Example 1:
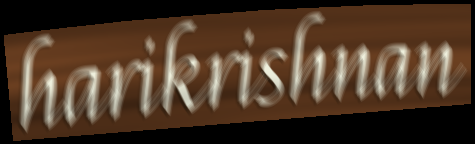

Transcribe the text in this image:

harikrishnan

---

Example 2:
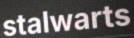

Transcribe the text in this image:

stalwarts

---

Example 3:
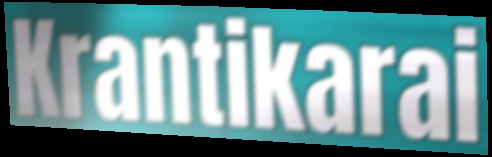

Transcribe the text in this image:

Krantikarai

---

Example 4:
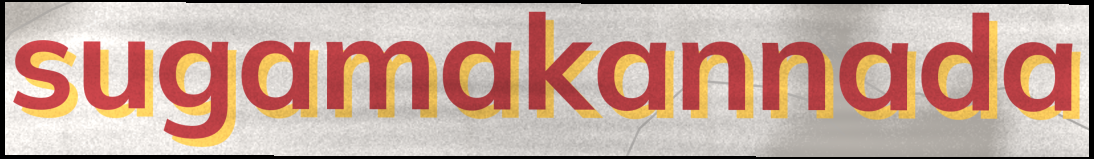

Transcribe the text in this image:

sugamakannada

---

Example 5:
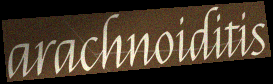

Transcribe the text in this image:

arachnoiditis